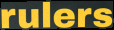
rulers